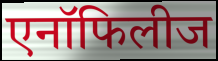
एनॉफिलीज